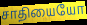
சாதியையோ